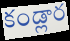
కండ్లార